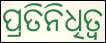
ପ୍ରତିନିଧିତ୍ୱ